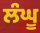
ਲੰਘੂ